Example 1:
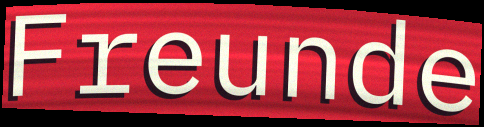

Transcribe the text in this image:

Freunde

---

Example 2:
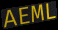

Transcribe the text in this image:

AEML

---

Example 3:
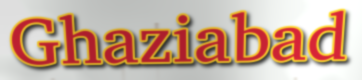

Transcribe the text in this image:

Ghaziabad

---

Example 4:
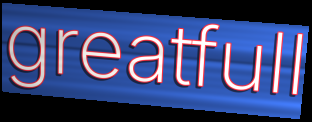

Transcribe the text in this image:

greatfull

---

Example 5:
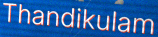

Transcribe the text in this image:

Thandikulam